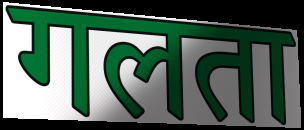
गलता